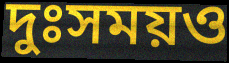
দুঃসময়ও